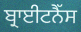
ਬ੍ਰਾਈਟਨੈੱਸ